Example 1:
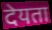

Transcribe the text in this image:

देयता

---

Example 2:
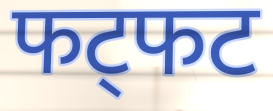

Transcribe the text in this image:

फट्फट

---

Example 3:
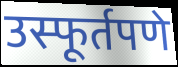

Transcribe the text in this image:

उस्फूर्तपणे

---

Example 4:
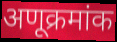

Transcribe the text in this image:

अणूक्रमांक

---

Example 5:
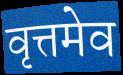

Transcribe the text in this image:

वृत्तमेव